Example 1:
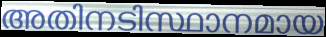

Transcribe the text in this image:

അതിനടിസ്ഥാനമായ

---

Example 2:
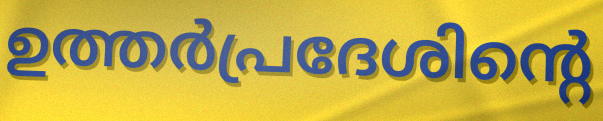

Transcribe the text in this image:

ഉത്തർപ്രദേശിന്റെ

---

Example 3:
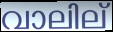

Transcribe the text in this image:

വാലില്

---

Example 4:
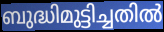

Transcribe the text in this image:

ബുദ്ധിമുട്ടിച്ചതിൽ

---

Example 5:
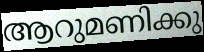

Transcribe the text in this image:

ആറുമണിക്കു